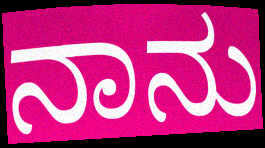
ನಾನು